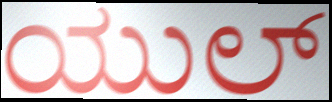
ಯುಲ್